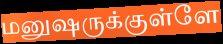
மனுஷருக்குள்ளே